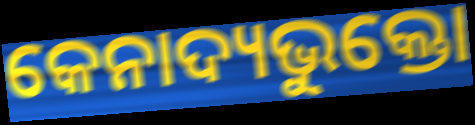
କେନାଦ୍ୟଭୁକ୍ତୋ